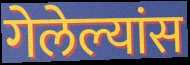
गेलेल्यांस